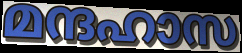
മന്ദഹാസ